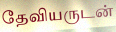
தேவியருடன்